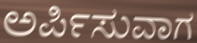
ಅರ್ಪಿಸುವಾಗ